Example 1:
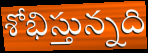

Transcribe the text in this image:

శోభిస్తున్నది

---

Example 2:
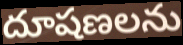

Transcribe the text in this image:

దూషణలను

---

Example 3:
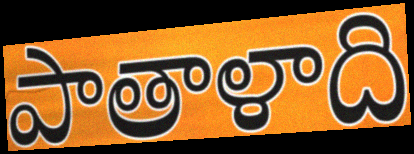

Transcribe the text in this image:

పాతాళాది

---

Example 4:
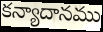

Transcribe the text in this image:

కన్యాదానము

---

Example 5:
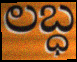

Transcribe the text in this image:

లబ్ధ